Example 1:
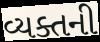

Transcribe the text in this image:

વ્યક્તની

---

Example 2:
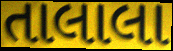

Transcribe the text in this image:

તાલાલા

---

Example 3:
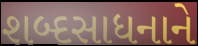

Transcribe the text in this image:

શબ્દસાધનાને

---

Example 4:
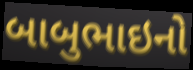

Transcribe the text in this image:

બાબુભાઇનો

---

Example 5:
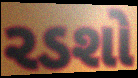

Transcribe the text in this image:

રડશો